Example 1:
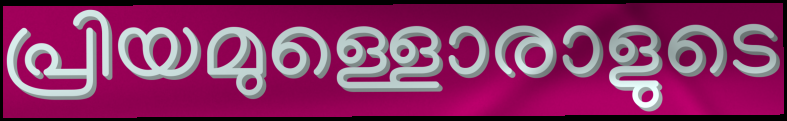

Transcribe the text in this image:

പ്രിയമുള്ളൊരാളുടെ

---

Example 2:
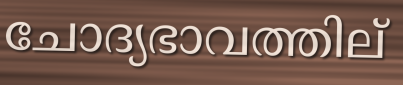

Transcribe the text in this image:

ചോദ്യഭാവത്തില്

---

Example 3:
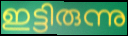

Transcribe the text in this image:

ഇട്ടിരുന്നു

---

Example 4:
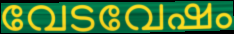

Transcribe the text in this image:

വേടവേഷം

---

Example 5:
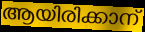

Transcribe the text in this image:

ആയിരിക്കാന്